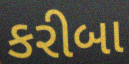
કરીબા